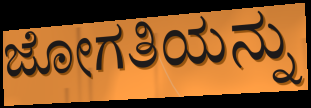
ಜೋಗತಿಯನ್ನು